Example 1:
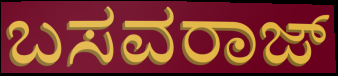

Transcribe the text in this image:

ಬಸವರಾಜ್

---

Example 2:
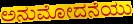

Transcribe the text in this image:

ಅನುಮೋದನೆಯು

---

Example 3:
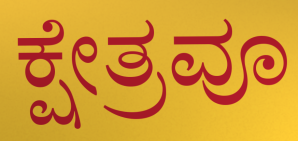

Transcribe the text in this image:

ಕ್ಷೇತ್ರವೂ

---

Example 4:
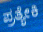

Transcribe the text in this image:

ಪ್ರತ್ಯೇಕಿ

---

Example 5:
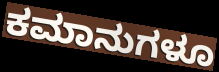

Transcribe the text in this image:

ಕಮಾನುಗಳೂ